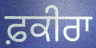
ਫ਼ਕੀਰਾ